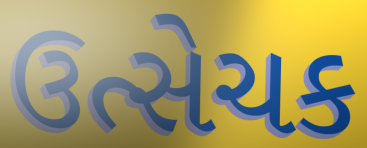
ઉત્સેચક